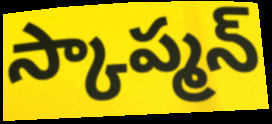
స్కాప్మన్